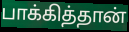
பாக்கித்தான்